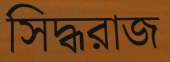
সিদ্ধরাজ